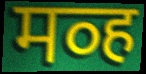
मव्ह